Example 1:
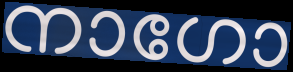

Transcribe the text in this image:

നാഗോ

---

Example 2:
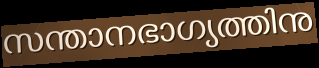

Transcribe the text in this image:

സന്താനഭാഗ്യത്തിനു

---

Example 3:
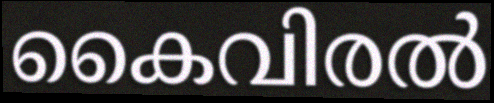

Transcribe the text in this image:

കൈവിരൽ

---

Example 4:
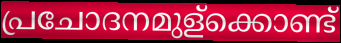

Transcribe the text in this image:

പ്രചോദനമുള്ക്കൊണ്ട്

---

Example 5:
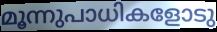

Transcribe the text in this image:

മൂന്നുപാധികളോടു